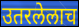
उतरलेलाच